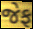
જેફ